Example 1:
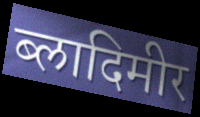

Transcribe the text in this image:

ब्लादिमीर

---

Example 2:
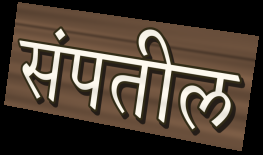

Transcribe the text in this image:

संपतील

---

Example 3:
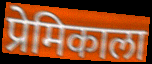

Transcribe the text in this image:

प्रेमिकाला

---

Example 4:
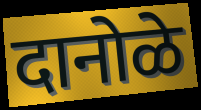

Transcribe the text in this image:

दानोळे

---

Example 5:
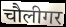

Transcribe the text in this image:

चौलीगर